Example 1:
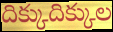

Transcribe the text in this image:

దిక్కుదిక్కుల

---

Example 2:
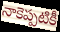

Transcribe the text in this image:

నాకెప్పటికీ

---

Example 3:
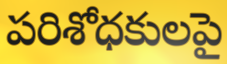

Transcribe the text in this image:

పరిశోధకులపై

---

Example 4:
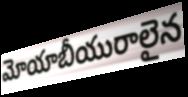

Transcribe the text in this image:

మోయాబీయురాలైన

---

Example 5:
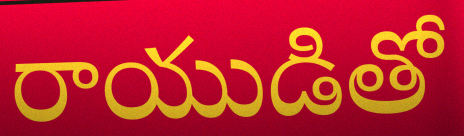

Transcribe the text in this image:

రాయుడితో